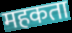
महकता